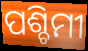
ପଶ୍ଚିମୀ